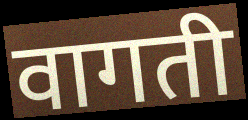
वागती